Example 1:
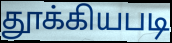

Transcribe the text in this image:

தூக்கியபடி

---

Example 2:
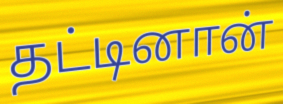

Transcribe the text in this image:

தட்டினான்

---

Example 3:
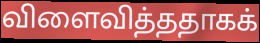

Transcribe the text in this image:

விளைவித்ததாகக்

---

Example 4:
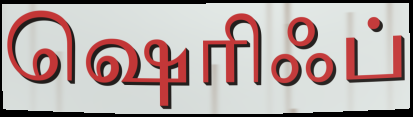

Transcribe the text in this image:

ஷெரிஃப்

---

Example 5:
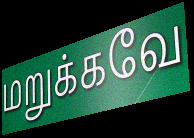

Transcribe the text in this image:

மறுக்கவே